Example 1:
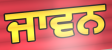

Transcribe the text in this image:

ਜਾਵਨ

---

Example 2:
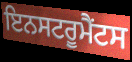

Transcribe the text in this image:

ਇਨਸਟਰੂਮੈਂਟਸ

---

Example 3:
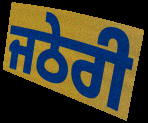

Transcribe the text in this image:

ਜਠੇਰੀ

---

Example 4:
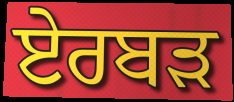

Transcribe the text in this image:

ਏਰਬੜ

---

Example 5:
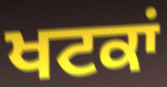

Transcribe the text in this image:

ਖਟਕਾਂ